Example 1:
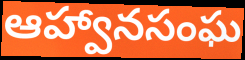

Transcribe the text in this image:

ఆహ్వానసంఘ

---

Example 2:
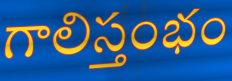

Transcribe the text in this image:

గాలిస్తంభం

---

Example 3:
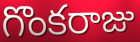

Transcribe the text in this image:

గొంకరాజు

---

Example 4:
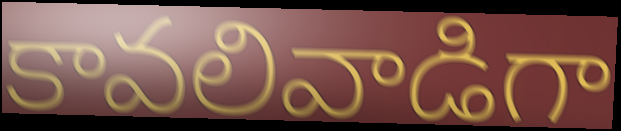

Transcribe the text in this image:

కావలివాడిగా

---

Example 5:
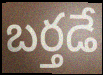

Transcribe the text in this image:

బర్తడే